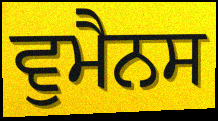
ਵੁਮੈਨਸ